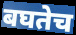
बघतेच